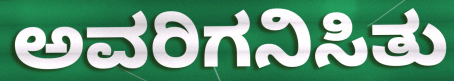
ಅವರಿಗನಿಸಿತು